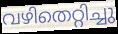
വഴിതെറ്റിച്ചു